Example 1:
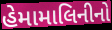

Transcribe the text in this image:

હેમામાલિનીનો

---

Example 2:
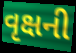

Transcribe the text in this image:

વૃક્ષની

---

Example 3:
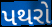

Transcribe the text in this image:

પથરો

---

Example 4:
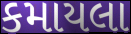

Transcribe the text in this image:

કમાયલા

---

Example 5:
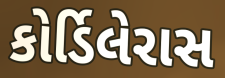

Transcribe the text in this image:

કોર્ડિલેરાસ